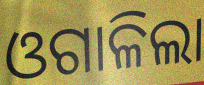
ଓଗାଳିଲା